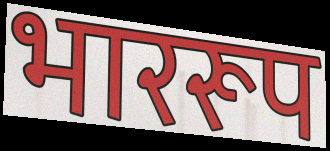
भाररूप